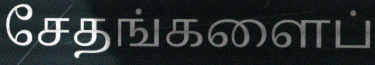
சேதங்களைப்